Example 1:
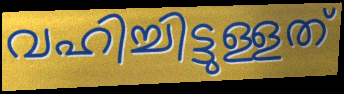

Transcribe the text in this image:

വഹിച്ചിട്ടുള്ളത്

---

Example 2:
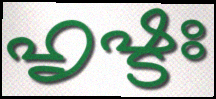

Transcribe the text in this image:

ഹൃഷ്ടഃ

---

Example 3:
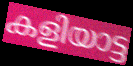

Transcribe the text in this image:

കളിയാട്ട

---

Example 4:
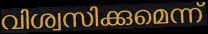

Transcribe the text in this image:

വിശ്വസിക്കുമെന്ന്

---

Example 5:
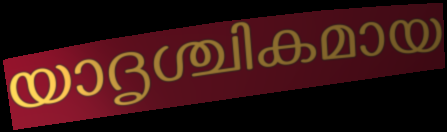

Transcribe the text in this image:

യാദൃശ്ചികമായ